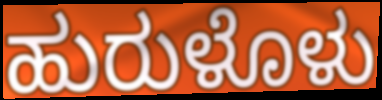
ಹುರುಳೊಳು